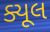
ક્યૂલ